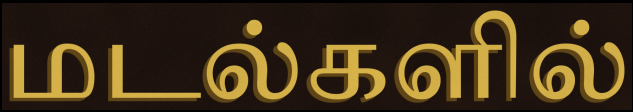
மடல்களில்